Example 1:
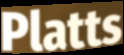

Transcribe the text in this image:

Platts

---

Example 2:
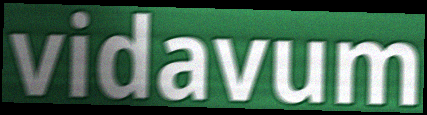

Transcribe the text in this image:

vidavum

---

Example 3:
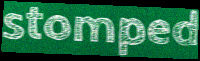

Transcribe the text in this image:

stomped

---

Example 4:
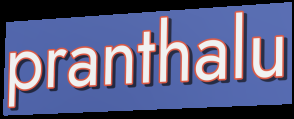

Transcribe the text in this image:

pranthalu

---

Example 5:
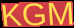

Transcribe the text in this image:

KGM